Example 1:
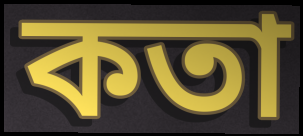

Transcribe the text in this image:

কতা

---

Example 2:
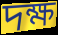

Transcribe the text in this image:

দক্ষ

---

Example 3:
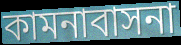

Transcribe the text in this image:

কামনাবাসনা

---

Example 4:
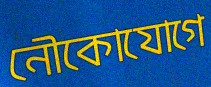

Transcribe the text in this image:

নৌকোযোগে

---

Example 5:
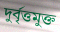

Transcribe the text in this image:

দুর্বৃত্তমুক্ত